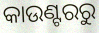
କାଉଣ୍ଟରରୁ